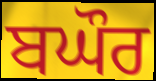
ਬਘੌਰ